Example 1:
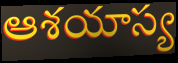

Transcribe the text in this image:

ఆశయాస్య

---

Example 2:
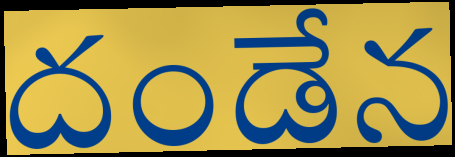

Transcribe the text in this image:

దండేన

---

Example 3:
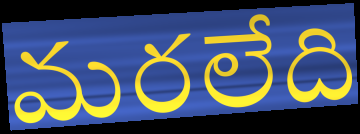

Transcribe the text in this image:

మరలేది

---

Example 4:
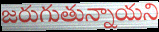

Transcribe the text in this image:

జరుగుతున్నాయని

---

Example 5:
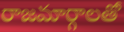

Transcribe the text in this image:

రాజమార్గాలతో